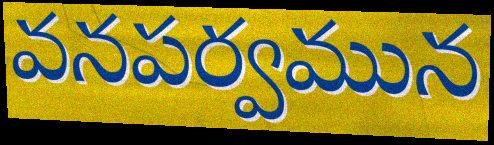
వనపర్వమున